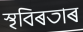
স্থবিৰতাৰ